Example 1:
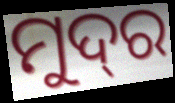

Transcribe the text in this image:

ମୁଦ୍‌ର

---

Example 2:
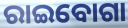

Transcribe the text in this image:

ରାଇବୋଗା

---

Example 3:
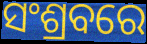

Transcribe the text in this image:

ସଂଶ୍ରବରେ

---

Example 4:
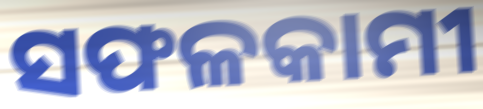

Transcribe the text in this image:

ସଫଳକାମୀ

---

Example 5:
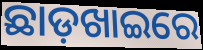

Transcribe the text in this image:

ଛାଡ଼ଖାଇରେ